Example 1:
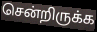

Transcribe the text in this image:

சென்றிருக்க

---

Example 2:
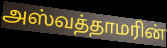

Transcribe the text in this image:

அஸ்வத்தாமரின்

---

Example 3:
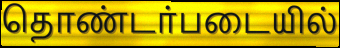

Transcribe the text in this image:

தொண்டர்படையில்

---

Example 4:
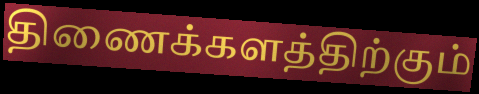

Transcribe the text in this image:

திணைக்களத்திற்கும்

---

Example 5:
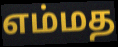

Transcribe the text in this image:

எம்மத